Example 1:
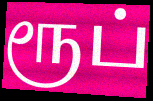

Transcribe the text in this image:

ரூப்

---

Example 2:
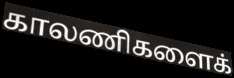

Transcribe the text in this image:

காலணிகளைக்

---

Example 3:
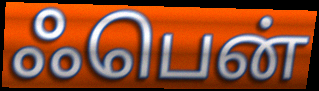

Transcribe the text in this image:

ஃபென்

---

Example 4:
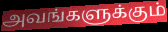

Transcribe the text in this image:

அவங்களுக்கும்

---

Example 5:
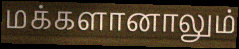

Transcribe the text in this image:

மக்களானாலும்